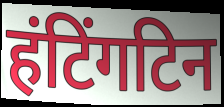
हंटिंगटिन